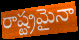
రాష్ట్రమైనా